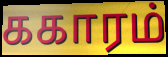
ககாரம்